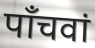
पाँचवां